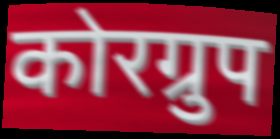
कोरग्रुप